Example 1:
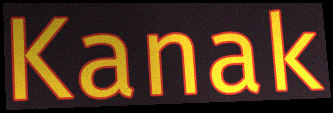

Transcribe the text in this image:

Kanak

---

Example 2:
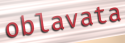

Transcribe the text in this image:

oblavata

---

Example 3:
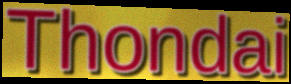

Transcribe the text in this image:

Thondai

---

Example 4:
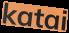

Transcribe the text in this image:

katai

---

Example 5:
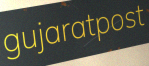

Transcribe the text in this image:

gujaratpost